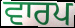
ਵਾਰਪ